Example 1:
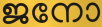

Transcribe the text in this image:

ജനോ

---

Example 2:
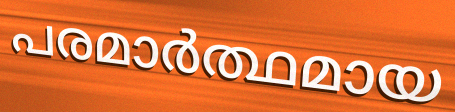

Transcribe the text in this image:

പരമാർത്ഥമായ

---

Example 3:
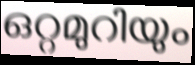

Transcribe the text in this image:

ഒറ്റമുറിയും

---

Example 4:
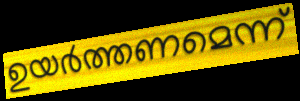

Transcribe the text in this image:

ഉയർത്തണമെന്ന്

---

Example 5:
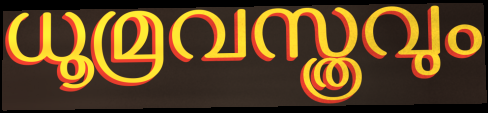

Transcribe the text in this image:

ധൂമ്രവസ്ത്രവും